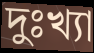
দুঃখ্যা